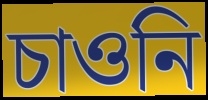
চাওনি